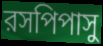
রসপিপাসু